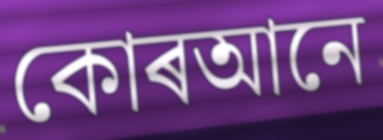
কোৰআনে